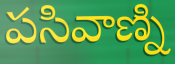
పసివాణ్ని